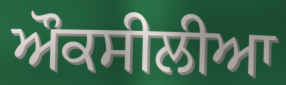
ਔਕਸੀਲੀਆ